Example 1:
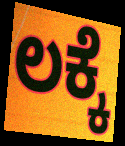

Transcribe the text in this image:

ಲಕ್ಕೆ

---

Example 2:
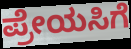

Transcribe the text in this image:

ಪ್ರೇಯಸಿಗೆ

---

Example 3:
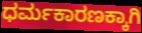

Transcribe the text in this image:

ಧರ್ಮಕಾರಣಕ್ಕಾಗಿ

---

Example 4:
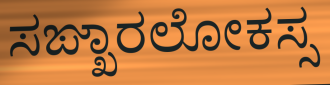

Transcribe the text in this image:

ಸಙ್ಖಾರಲೋಕಸ್ಸ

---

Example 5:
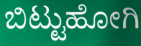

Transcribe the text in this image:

ಬಿಟ್ಟುಹೋಗಿ